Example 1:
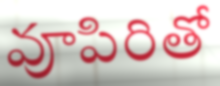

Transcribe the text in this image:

వూపిరితో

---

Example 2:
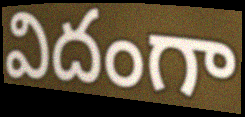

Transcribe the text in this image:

విదంగా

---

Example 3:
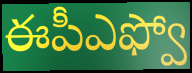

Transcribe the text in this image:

ఈపీఎఫ్వో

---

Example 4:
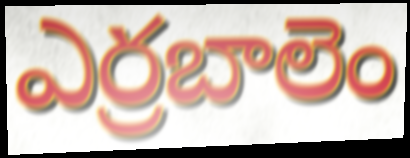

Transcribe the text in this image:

ఎర్రబాలెం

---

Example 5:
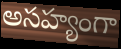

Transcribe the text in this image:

అసహ్యంగా